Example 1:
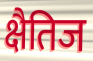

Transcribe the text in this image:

क्षैतिज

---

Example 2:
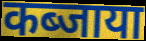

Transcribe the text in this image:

कब्जाया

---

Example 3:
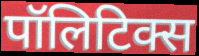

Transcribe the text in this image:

पॉलिटिक्स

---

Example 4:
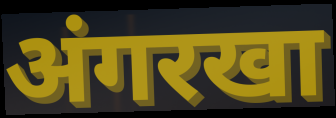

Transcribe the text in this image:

अंगरखा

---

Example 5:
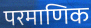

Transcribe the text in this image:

परमाणिक